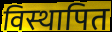
विस्थापित